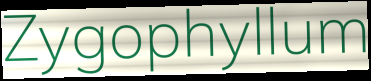
Zygophyllum